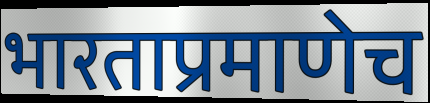
भारताप्रमाणेच